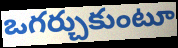
ఒగర్చుకుంటూ